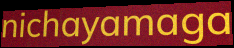
nichayamaga